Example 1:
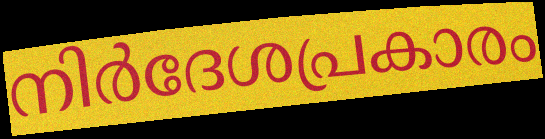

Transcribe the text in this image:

നിർദേശപ്രകാരം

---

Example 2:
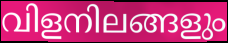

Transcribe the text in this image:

വിളനിലങ്ങളും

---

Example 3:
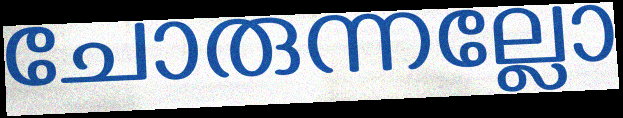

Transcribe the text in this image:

ചോരുന്നല്ലോ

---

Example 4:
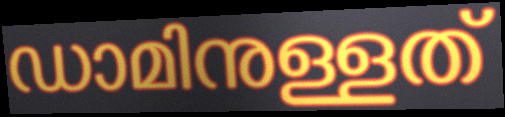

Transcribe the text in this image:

ഡാമിനുള്ളത്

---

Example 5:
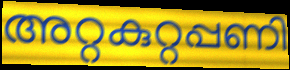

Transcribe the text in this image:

അറ്റകുറ്റപ്പണി